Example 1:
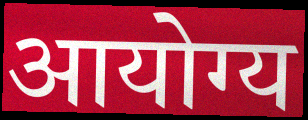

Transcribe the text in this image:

आयोग्य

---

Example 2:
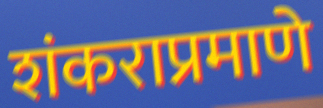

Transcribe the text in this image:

शंकराप्रमाणे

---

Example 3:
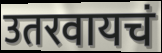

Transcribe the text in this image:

उतरवायचं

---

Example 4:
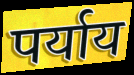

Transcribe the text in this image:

पर्याय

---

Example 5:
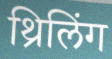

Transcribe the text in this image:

थ्रिलिंग